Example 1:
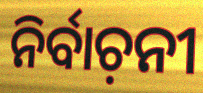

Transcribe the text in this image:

ନିର୍ବାଚ଼ନୀ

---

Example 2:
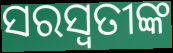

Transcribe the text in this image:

ସରସ୍ବତୀଙ୍କ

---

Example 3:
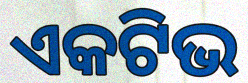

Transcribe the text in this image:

ଏକଟିଭ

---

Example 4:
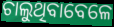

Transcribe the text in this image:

ଚାଲୁଥିବାବେଳେ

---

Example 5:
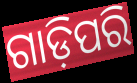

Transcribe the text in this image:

ଗାଡ଼ିପରି